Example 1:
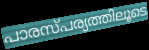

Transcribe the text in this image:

പാരസ്പര്യത്തിലൂടെ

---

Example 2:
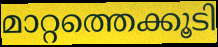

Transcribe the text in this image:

മാറ്റത്തെക്കൂടി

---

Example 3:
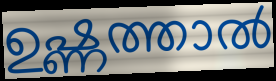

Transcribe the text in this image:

ഉഷ്ണത്താൽ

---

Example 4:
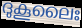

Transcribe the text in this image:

ദുകൂലൈഃ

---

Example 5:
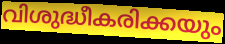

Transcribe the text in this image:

വിശുദ്ധീകരിക്കയും